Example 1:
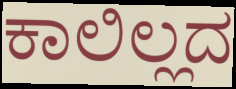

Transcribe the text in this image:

ಕಾಲಿಲ್ಲದ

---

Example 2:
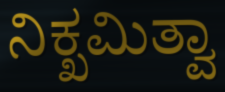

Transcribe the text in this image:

ನಿಕ್ಖಮಿತ್ವಾ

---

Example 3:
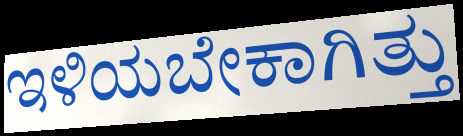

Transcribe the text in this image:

ಇಳಿಯಬೇಕಾಗಿತ್ತು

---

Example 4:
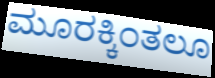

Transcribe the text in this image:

ಮೂರಕ್ಕಿಂತಲೂ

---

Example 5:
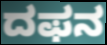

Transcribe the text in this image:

ದಫನ